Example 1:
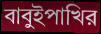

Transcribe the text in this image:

বাবুইপাখির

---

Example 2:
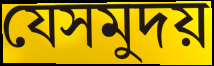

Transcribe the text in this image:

যেসমুদয়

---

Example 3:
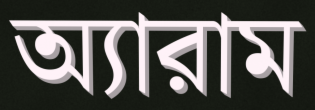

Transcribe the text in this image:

অ্যারাম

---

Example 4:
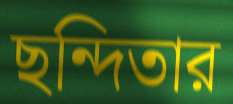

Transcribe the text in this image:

ছন্দিতার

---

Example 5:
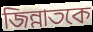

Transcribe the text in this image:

জিন্নাতকে